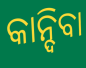
କାନ୍ଦିବା